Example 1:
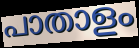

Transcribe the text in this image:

പാതാളം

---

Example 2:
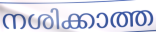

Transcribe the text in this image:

നശിക്കാത്ത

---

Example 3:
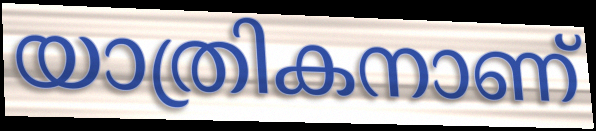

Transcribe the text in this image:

യാത്രികനാണ്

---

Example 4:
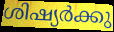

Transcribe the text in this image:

ശിഷ്യർക്കു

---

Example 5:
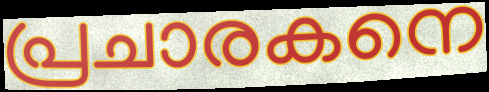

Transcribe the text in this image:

പ്രചാരകനെ